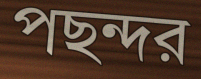
পছন্দর